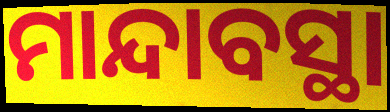
ମାନ୍ଦାବସ୍ଥା